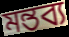
মন্তব্য